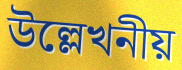
উল্লেখনীয়